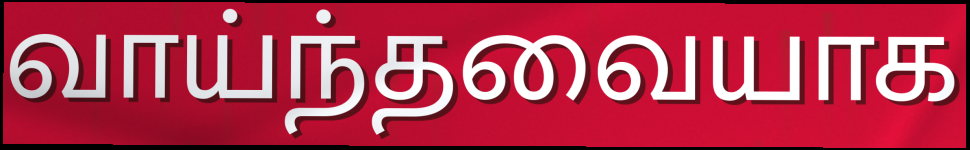
வாய்ந்தவையாக